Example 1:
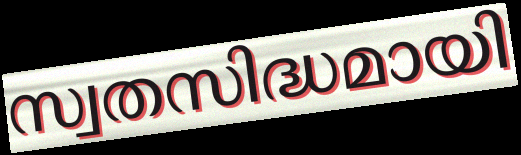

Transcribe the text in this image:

സ്വതസിദ്ധമായി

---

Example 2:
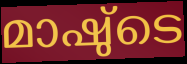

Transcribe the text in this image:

മാഷു്ടെ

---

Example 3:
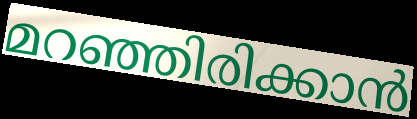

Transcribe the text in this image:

മറഞ്ഞിരിക്കാൻ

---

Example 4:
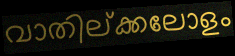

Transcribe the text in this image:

വാതില്ക്കലോളം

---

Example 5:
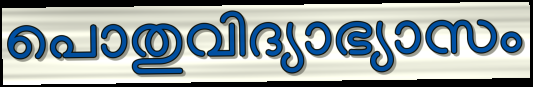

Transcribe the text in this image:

പൊതുവിദ്യാഭ്യാസം